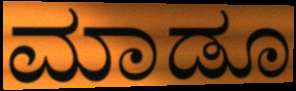
ಮಾಡೂ